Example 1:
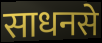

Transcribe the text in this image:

साधनसे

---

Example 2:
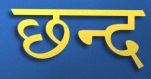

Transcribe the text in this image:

छन्द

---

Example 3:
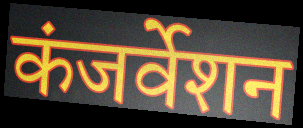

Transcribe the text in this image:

कंजर्वेशन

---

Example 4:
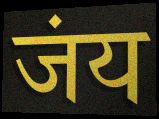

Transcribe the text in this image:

जंय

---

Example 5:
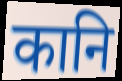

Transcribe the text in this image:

कानि